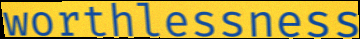
worthlessness